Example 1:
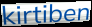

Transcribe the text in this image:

kirtiben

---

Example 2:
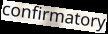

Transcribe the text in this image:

confirmatory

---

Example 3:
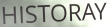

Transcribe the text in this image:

HISTORAY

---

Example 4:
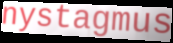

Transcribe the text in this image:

nystagmus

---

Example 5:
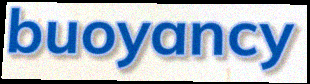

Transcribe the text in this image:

buoyancy